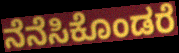
ನೆನೆಸಿಕೊಂಡರೆ